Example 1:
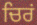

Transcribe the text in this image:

ਚਿਰਂ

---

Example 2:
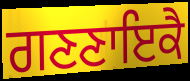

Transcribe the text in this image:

ਗਣਣਾਇਕੈ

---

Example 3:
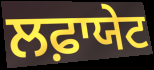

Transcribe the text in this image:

ਲਫ਼ਾਯੇਟ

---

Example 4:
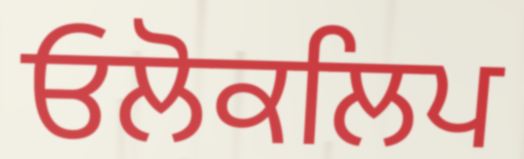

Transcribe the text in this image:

ਓਲੋਕਲਿਪ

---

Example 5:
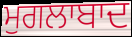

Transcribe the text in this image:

ਮੁਗਲਾਬਾਦ